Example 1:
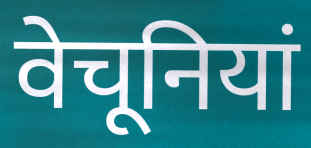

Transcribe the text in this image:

वेचूनियां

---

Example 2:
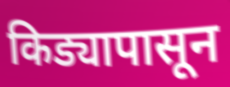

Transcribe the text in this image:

किड्यापासून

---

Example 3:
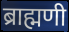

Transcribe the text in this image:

ब्राह्मणी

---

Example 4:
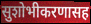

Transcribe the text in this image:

सुशोभीकरणासह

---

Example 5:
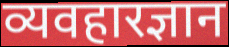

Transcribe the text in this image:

व्यवहारज्ञान